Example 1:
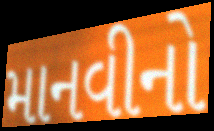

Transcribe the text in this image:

માનવીનો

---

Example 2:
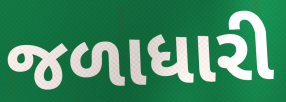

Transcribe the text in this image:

જળાધારી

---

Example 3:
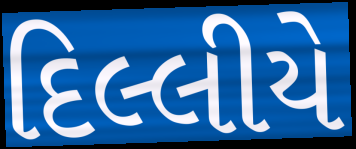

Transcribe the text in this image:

દિલ્લીયે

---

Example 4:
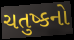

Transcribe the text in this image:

ચતુષ્કનો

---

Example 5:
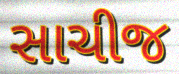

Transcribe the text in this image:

સાચીજ